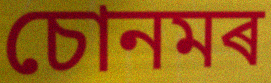
চোনমৰ